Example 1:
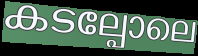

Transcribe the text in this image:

കടല്പോലെ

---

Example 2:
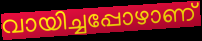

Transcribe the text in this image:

വായിച്ചപ്പോഴാണ്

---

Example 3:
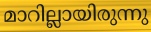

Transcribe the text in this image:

മാറില്ലായിരുന്നു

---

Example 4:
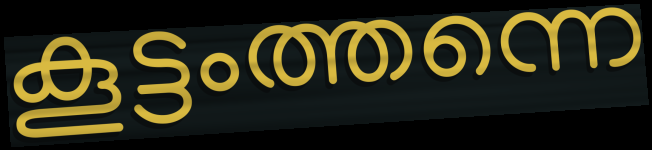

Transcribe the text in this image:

കൂട്ടംത്തന്നെ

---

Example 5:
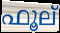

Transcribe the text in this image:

ഫൂല്